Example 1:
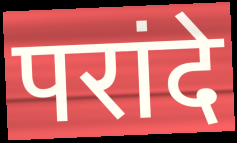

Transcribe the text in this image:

परांदे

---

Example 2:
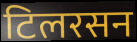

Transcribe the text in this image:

टिलरसन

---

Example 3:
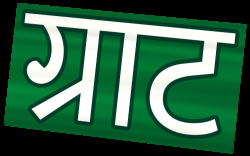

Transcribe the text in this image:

ग्राट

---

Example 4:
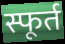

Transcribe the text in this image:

स्‍फूर्त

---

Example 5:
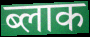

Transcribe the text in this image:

ब्लाक